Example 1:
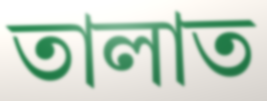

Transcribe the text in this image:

তালাত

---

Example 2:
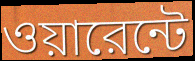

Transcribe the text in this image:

ওয়ারেন্টে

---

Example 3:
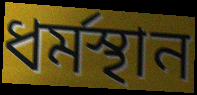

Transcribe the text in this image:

ধর্মস্থান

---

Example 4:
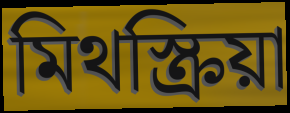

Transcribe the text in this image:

মিথস্ক্রিয়া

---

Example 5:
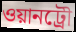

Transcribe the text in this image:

ওয়ানট্রৌ